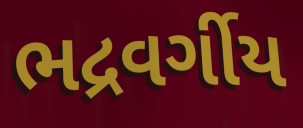
ભદ્રવર્ગીય